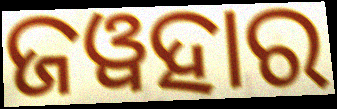
ଜୱହାର